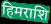
हिमराशि